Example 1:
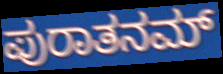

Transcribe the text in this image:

ಪುರಾತನಮ್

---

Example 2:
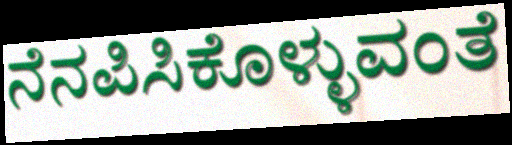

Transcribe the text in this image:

ನೆನಪಿಸಿಕೊಳ್ಳುವಂತೆ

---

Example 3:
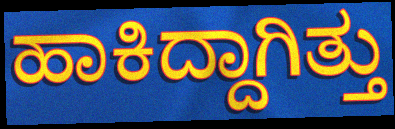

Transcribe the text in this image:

ಹಾಕಿದ್ದಾಗಿತ್ತು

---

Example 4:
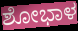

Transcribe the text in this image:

ಶೋಭಾಳ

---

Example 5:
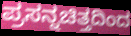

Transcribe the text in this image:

ಪ್ರಸನ್ನಚಿತ್ತದಿಂದ